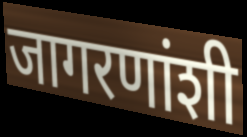
जागरणांशी